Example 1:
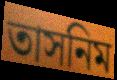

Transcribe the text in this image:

তাসনিম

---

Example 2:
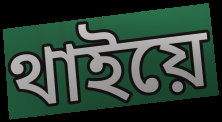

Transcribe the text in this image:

থাইয়ে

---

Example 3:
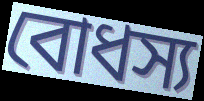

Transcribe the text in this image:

বোধস্য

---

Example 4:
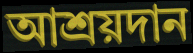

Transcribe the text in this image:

আশ্রয়দান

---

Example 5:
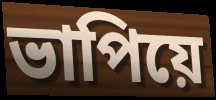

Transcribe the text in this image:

ভাপিয়ে